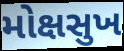
મોક્ષસુખ